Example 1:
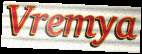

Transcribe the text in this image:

Vremya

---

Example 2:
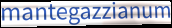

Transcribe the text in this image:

mantegazzianum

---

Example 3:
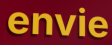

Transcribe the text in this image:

envie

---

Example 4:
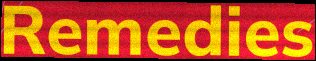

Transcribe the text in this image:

Remedies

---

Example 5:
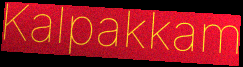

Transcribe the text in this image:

Kalpakkam